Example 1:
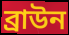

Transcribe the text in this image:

ব্রাউন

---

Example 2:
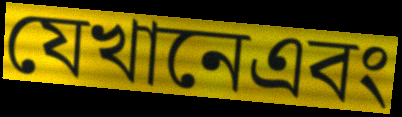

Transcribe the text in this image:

যেখানেএবং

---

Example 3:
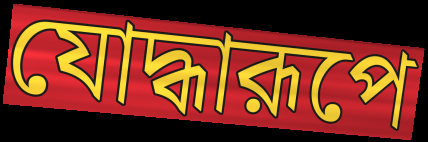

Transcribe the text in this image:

যোদ্ধারূপে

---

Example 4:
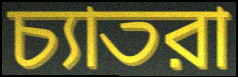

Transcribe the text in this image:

চ্যাতরা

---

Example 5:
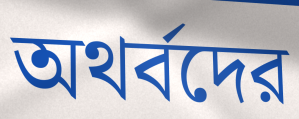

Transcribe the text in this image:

অথর্বদের